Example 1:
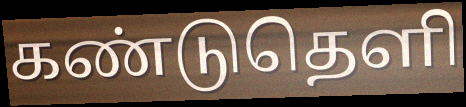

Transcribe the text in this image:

கண்டுதெளி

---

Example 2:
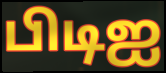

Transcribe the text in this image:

பிடிஐ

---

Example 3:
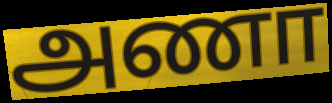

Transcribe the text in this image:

அணா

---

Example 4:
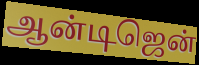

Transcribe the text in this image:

ஆன்டிஜென்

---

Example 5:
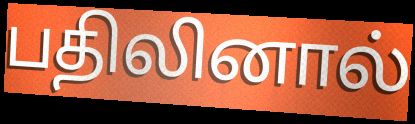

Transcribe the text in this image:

பதிலினால்